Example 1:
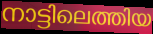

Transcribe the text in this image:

നാട്ടിലെത്തിയ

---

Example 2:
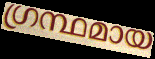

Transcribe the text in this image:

ഗ്രന്ഥമായ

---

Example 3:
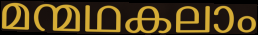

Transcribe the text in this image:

മന്മഥകലാം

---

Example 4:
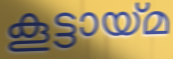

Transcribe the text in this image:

കൂട്ടായ്മ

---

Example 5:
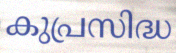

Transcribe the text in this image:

കുപ്രസിദ്ധ